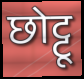
छोट्टू